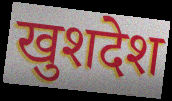
खुशदेश